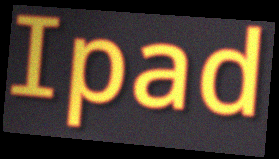
Ipad